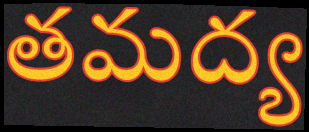
తమద్య